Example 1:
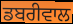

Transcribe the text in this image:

ਡਬਰੀਵਾਲ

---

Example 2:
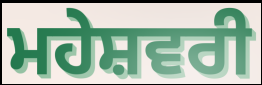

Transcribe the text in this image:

ਮਹੇਸ਼ਵਰੀ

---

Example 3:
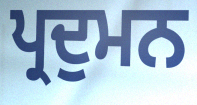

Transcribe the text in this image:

ਪ੍ਰਦੁਮਨ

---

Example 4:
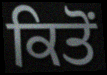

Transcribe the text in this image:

ਕਿਤੋਂ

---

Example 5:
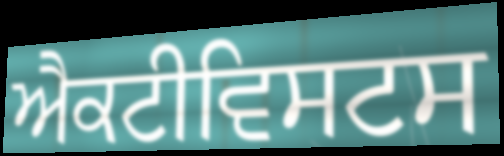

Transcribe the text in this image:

ਐਕਟੀਵਿਸਟਸ